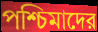
পশ্চিমাদের